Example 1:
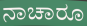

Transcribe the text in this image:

ನಾಚಾರೂ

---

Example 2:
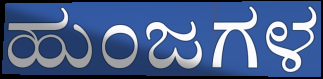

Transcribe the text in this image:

ಹುಂಜಗಳ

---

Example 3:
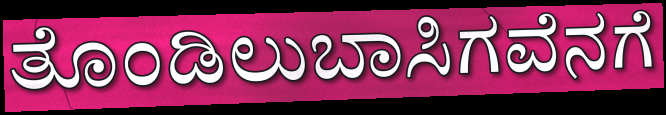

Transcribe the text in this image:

ತೊಂಡಿಲುಬಾಸಿಗವೆನಗೆ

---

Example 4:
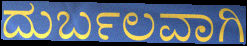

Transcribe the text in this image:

ದುರ್ಬಲವಾಗಿ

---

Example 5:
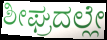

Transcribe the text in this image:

ಶೀಘ್ರದಲ್ಲೇ